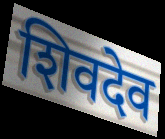
शिवदेव